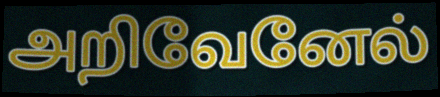
அறிவேனேல்